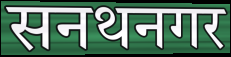
सनथनगर